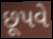
છૂપવે